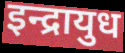
इन्द्रायुध